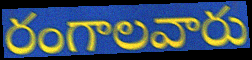
రంగాలవారు